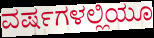
ವರ್ಷಗಳಲ್ಲಿಯೂ